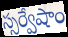
స్సర్వేషాం